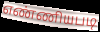
எண்ணியபடி